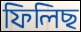
ফিলিছ